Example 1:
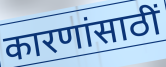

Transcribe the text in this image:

कारणांसाठीं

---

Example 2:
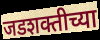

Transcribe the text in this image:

जडशक्तीच्या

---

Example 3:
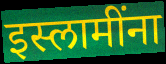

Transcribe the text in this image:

इस्लामींना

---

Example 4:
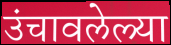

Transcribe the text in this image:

उंचावलेल्या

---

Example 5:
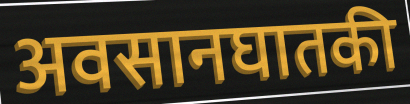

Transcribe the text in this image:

अवसानघातकी